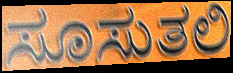
ಸೂಸುತಲಿ